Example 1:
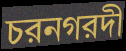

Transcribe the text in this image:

চরনগরদী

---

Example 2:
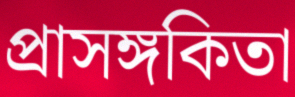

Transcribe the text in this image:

প্রাসঙ্গকিতা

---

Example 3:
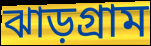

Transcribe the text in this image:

ঝাড়গ্রাম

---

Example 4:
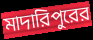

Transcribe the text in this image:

মাদারিপুরের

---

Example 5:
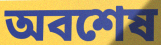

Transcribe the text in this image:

অবশেষ